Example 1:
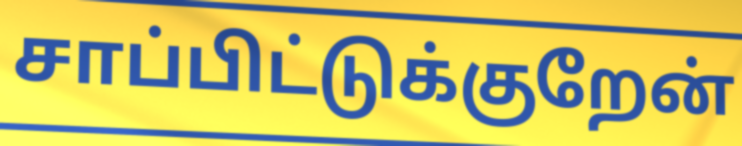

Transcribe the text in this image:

சாப்பிட்டுக்குறேன்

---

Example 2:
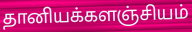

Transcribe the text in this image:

தானியக்களஞ்சியம்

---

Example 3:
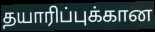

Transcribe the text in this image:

தயாரிப்புக்கான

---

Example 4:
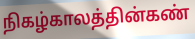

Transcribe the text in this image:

நிகழ்காலத்தின்கண்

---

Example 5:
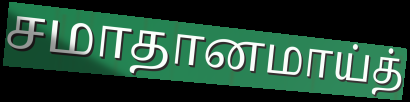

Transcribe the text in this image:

சமாதானமாய்த்